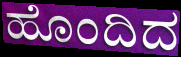
ಹೊಂದಿದ